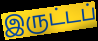
இருட்டப்